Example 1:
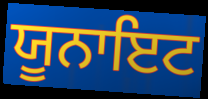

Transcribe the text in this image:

ਯੂਨਾਇਟ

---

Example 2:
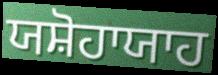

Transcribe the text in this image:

ਯਸ਼ੋਹਾਯਾਹ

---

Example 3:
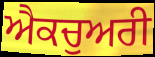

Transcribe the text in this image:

ਐਕਚੁਅਰੀ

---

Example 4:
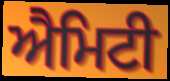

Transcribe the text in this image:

ਐਮਿਟੀ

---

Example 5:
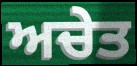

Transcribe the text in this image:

ਅਚੇਤ